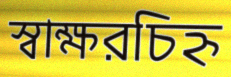
স্বাক্ষরচিহ্ন